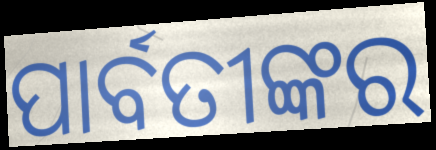
ପାର୍ବତୀଙ୍କର